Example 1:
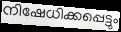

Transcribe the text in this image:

നിഷേധിക്കപ്പെട്ടും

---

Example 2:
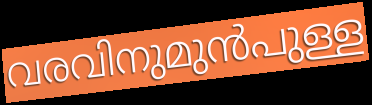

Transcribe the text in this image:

വരവിനുമുൻപുള്ള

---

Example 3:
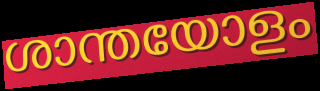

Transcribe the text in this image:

ശാന്തയോളം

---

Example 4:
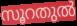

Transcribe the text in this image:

സൂറതുൽ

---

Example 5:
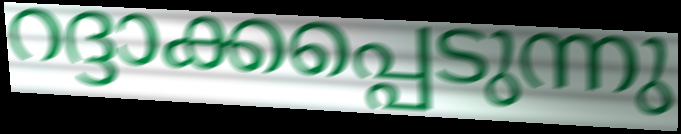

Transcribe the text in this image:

റദ്ദാക്കപ്പെടുന്നു